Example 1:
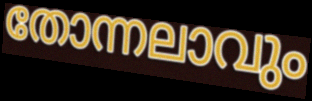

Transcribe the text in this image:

തോന്നലാവും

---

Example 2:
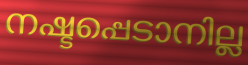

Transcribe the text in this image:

നഷ്ടപ്പെടാനില്ല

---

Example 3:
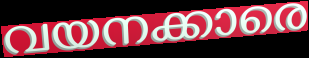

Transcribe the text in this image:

വയനക്കാരെ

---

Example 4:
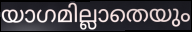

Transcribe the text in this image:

യാഗമില്ലാതെയും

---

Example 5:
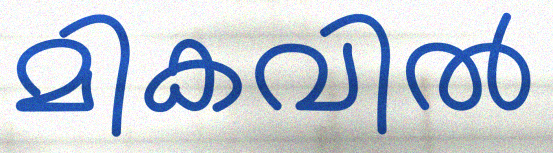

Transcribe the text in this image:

മികവിൽ